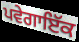
ਪਵੇਗਾਇੱਕ